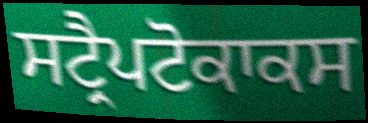
ਸਟ੍ਰੈਪਟੋਕਾਕਸ